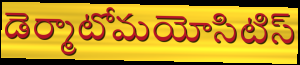
డెర్మాటోమయోసిటిస్